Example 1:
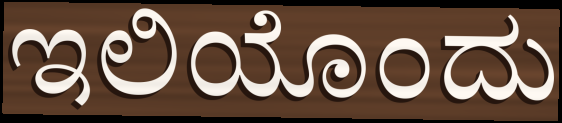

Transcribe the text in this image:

ಇಲಿಯೊಂದು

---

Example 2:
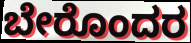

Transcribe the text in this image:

ಬೇರೊಂದರ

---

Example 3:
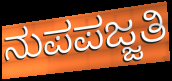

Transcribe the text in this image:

ನುಪಪಜ್ಜತಿ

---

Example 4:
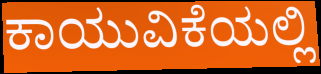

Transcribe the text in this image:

ಕಾಯುವಿಕೆಯಲ್ಲಿ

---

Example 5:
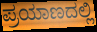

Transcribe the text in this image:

ಪ್ರಯಾಣದಲ್ಲಿ